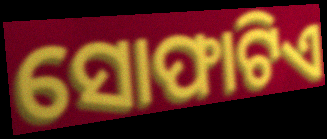
ସୋଫାଟିଏ